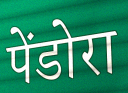
पेंडोरा